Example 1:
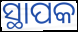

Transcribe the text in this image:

ସ୍ଥାପକ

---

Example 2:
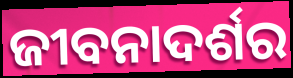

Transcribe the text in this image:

ଜୀବନାଦର୍ଶର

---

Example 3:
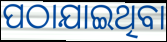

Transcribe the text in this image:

ପଠାଯାଇଥିବା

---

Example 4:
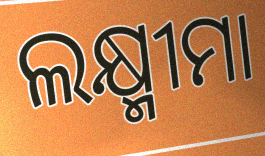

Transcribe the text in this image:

ଲକ୍ଷ୍ମୀମା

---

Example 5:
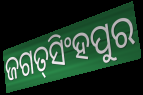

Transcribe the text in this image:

ଜଗତ୍‌ସିଂହପୁର